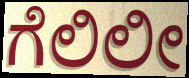
ಗೆಲಿಲೀ